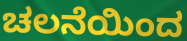
ಚಲನೆಯಿಂದ